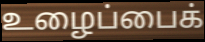
உழைப்பைக்